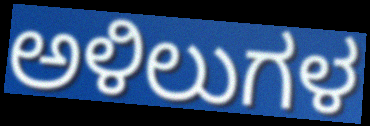
ಅಳಿಲುಗಳ